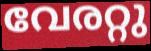
വേരറ്റു